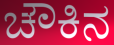
ಚೌಕಿನ